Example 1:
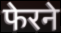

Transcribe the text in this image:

फेरने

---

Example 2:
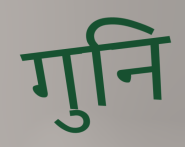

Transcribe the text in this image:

गुनि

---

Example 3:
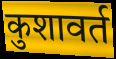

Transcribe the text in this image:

कुशावर्त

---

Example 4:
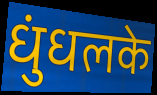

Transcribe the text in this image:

धुंधलके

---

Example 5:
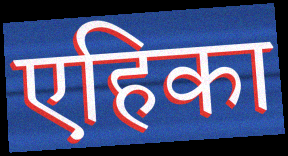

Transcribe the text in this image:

एहिका